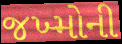
જખ્મોની